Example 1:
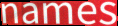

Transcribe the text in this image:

names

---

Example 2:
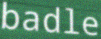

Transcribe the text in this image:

badle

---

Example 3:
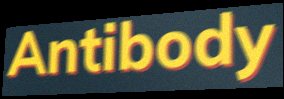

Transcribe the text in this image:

Antibody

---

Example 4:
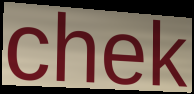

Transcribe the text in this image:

chek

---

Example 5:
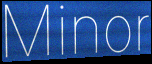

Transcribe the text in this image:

Minor